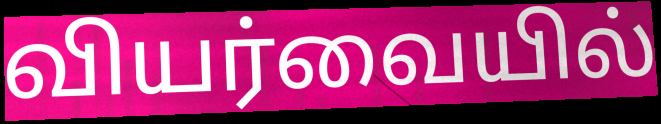
வியர்வையில்